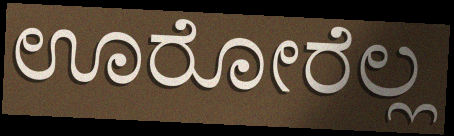
ಊರೋರೆಲ್ಲ